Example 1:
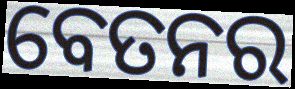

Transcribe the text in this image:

ବେତନର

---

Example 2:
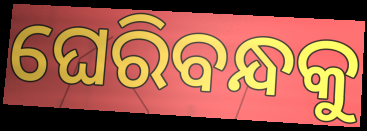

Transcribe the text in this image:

ଘେରିବନ୍ଧକୁ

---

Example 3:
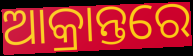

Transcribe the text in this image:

ଆକ୍ରାନ୍ତରେ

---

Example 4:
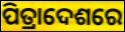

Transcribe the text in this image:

ପିତ୍ରାଦେଶରେ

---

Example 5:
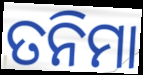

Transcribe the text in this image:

ତନିମା